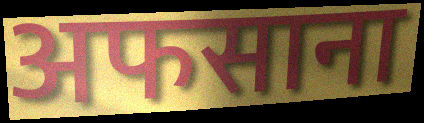
अफसाना